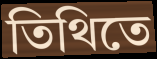
তিথিতে